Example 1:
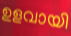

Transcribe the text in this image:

ഉളവായി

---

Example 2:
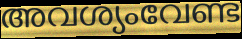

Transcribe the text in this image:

അവശ്യംവേണ്ട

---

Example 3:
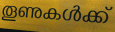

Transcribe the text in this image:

തൂണുകൾക്ക്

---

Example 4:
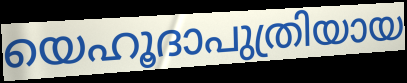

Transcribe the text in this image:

യെഹൂദാപുത്രിയായ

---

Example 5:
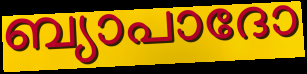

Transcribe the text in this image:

ബ്യാപാദോ